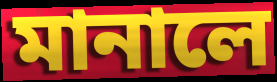
মানালে